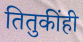
तितुकींही